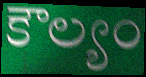
కౌల్యం